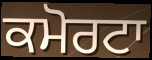
ਕਮੋਰਟਾ